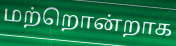
மற்றொன்றாக